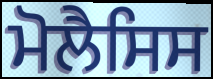
ਮੋਲੈਸਿਸ